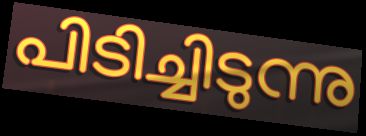
പിടിച്ചിടുന്നു